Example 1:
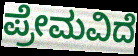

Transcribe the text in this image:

ಪ್ರೇಮವಿದೆ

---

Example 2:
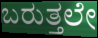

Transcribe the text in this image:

ಬರುತ್ತಲೇ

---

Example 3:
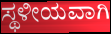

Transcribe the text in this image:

ಸ್ಥಳೀಯವಾಗಿ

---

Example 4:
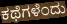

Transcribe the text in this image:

ಕಥೆಗಳೆಂದು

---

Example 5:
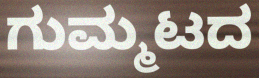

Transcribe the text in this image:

ಗುಮ್ಮಟದ